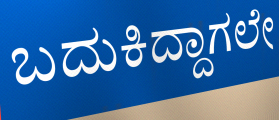
ಬದುಕಿದ್ದಾಗಲೇ